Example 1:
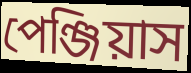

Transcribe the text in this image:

পেঞ্জিয়াস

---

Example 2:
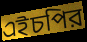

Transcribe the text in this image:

এইচপির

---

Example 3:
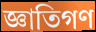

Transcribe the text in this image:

জ্ঞাতিগণ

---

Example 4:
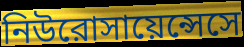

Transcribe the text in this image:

নিউরোসায়েন্সেসে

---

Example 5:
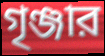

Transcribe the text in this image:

গৃঞ্জার